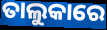
ତାଲୁକାରେ